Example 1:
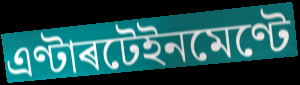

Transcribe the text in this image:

এণ্টাৰটেইনমেণ্টে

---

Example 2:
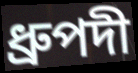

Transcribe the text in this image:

ধ্ৰুপদী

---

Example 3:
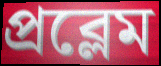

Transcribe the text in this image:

প্ৰব্লেম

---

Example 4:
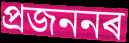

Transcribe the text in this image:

প্ৰজননৰ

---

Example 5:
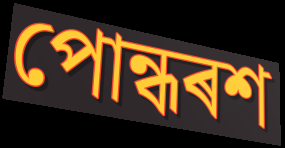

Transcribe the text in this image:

পোন্ধৰশ